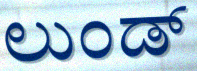
ಲುಂಡ್